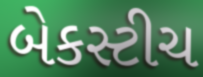
બેકસ્ટીચ